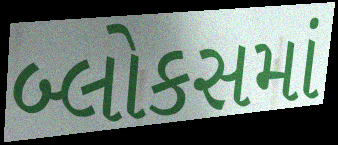
બ્લોકસમાં